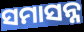
ସମାସନ୍ନ